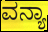
ವನ್ಯಾ